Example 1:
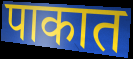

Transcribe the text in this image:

पाकात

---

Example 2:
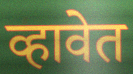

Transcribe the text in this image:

व्हावेत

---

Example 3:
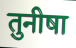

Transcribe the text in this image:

तुनीषा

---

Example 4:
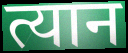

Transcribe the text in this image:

त्यान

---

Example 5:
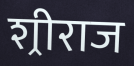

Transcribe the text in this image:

श्रीराज